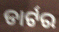
ଡାର୍ଟର